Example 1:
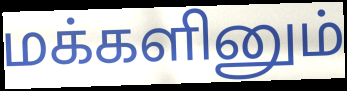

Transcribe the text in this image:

மக்களினும்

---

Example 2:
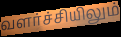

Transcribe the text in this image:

வளர்ச்சியிலும்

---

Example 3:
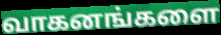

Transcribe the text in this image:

வாகனங்களை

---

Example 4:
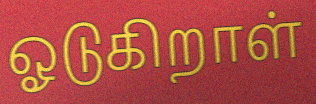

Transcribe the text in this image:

ஓடுகிறாள்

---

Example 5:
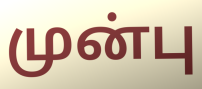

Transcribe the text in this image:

முன்பு